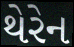
થેરેન